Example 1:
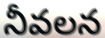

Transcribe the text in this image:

నీవలన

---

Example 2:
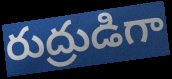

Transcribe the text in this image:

రుద్రుడిగా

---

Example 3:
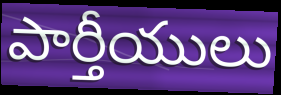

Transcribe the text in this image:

పార్తీయులు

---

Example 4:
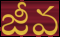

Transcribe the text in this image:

జీవ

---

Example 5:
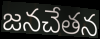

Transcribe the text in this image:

జనచేతన